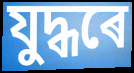
যুদ্ধৰে